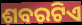
ଶବରଟିଏ